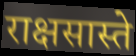
राक्षसास्ते